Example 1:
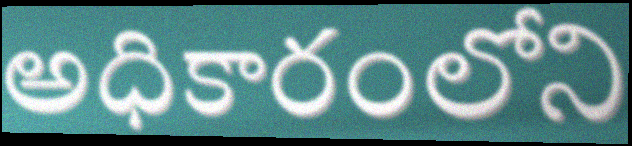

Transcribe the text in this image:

అధికారంలోని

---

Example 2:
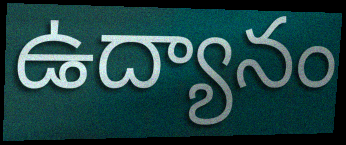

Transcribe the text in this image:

ఉద్యానం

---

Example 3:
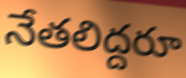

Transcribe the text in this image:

నేతలిద్దరూ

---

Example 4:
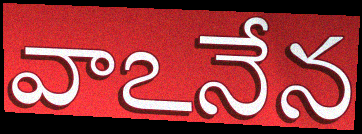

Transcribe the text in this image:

వాఽనేన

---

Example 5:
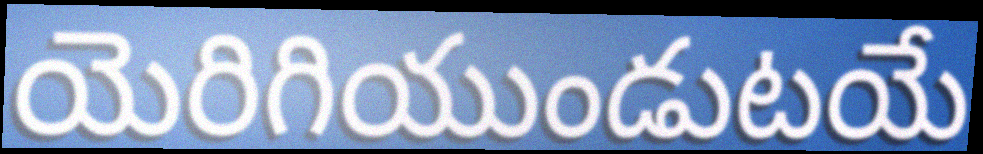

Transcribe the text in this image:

యెరిగియుండుటయే